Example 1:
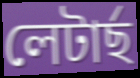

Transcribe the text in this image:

লেটাৰ্ছ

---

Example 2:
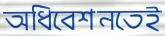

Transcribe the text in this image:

অধিবেশনতেই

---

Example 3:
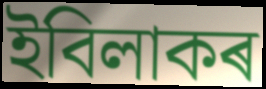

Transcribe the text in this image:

ইবিলাকৰ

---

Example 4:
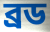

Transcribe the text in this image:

ব্ৰড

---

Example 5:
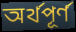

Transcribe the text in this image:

অৰ্থপূৰ্ণ